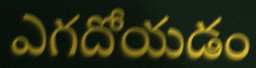
ఎగదోయడం